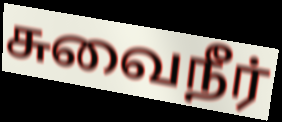
சுவைநீர்